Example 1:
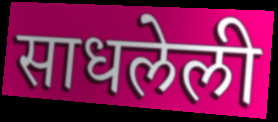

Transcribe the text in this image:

साधलेली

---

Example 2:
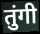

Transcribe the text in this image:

तुंगी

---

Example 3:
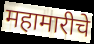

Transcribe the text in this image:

महामारीचे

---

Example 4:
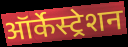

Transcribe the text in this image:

ऑर्केस्ट्रेशन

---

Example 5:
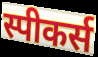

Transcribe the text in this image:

स्पीकर्स